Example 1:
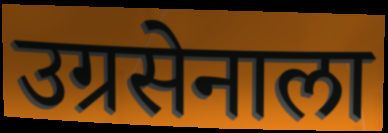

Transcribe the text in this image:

उग्रसेनाला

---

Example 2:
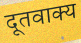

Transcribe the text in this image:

दूतवाक्य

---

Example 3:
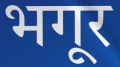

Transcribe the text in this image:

भगूर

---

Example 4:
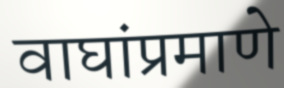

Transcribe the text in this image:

वाघांप्रमाणे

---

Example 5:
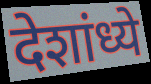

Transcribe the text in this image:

देशांध्ये